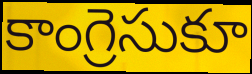
కాంగ్రెసుకూ